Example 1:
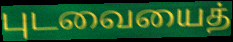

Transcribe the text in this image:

புடவையைத்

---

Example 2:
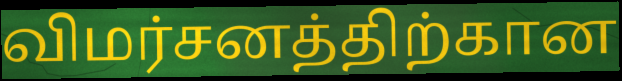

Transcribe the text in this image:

விமர்சனத்திற்கான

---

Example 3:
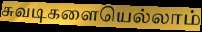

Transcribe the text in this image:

சுவடிகளையெல்லாம்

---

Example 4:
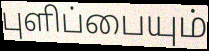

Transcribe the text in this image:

புளிப்பையும்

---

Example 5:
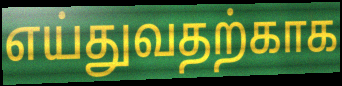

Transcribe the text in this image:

எய்துவதற்காக